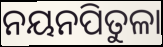
ନୟନପିତୁଳା